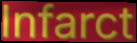
Infarct